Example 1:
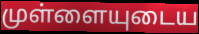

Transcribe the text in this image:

முள்ளையுடைய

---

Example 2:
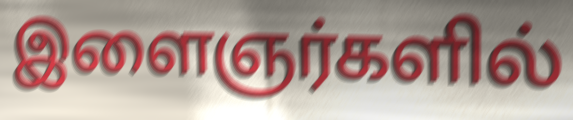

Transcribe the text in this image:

இளைஞர்களில்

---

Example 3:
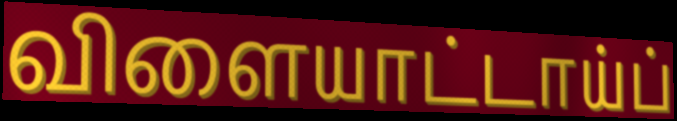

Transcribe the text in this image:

விளையாட்டாய்ப்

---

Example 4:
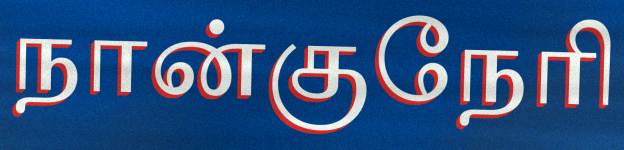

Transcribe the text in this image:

நான்குநேரி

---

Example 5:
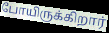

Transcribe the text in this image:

போயிருக்கிறார்